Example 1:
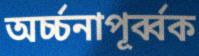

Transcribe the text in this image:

অর্চ্চনাপূর্ব্বক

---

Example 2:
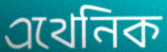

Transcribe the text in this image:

এথেনিক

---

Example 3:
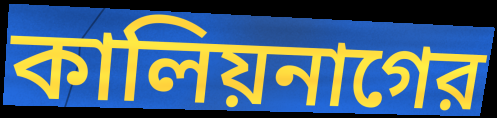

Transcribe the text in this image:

কালিয়নাগের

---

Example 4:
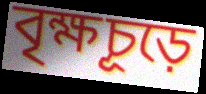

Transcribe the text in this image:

বৃক্ষচূড়ে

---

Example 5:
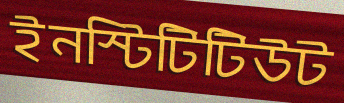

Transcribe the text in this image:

ইনস্টিটিটিউট